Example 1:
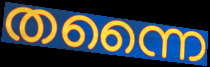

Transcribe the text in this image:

തന്നൈ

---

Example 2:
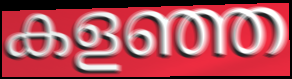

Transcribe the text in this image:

കളഞ്ഞ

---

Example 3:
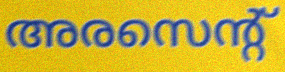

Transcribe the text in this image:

അരസെന്റ്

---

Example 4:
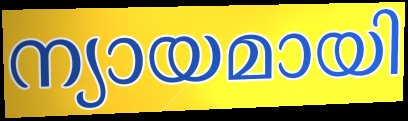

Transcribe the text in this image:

ന്യായമായി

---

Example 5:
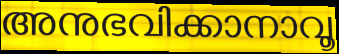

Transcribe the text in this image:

അനുഭവിക്കാനാവൂ